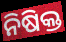
ନିଷିକ୍ତ